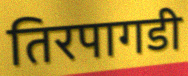
तिरपागडी